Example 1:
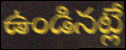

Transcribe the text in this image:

ఉండినట్లే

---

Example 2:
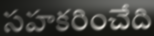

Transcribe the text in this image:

సహకరించేది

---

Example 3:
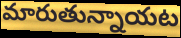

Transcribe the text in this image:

మారుతున్నాయట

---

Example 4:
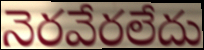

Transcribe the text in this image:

నెరవేరలేదు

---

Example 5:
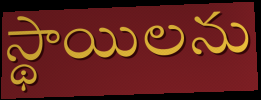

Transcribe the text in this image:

స్థాయిలను